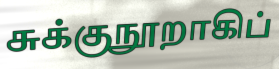
சுக்குநூறாகிப்